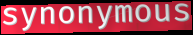
synonymous